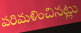
పరిమళించినట్లు